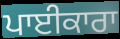
ਪਾਈਕਾਰਾ